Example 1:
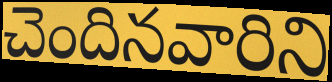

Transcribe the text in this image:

చెందినవారిని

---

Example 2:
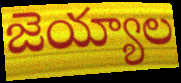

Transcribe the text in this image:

జెయ్యాల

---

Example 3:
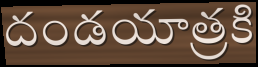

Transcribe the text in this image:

దండయాత్రకి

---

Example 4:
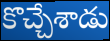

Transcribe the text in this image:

కొచ్చేశాడు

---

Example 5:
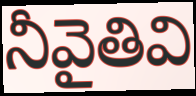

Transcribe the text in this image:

నీవైతివి